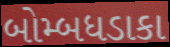
બોમ્બધડાકા